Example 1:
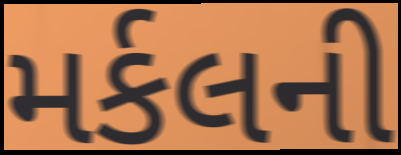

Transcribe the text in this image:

મર્કલની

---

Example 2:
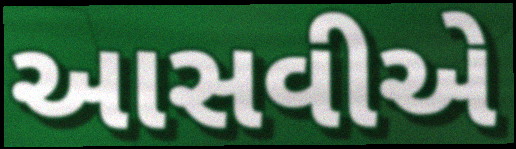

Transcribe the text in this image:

આસવીએ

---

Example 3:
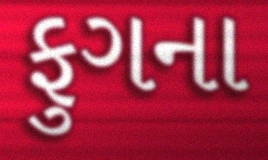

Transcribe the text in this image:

ફુગના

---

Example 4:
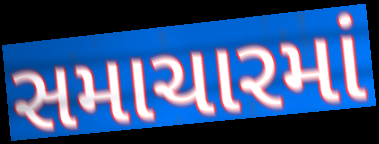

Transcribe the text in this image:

સમાચારમાં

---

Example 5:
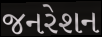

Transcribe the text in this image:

જનરેશન